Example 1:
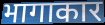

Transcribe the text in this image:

भागाकार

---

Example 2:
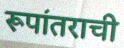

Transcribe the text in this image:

रूपांतराची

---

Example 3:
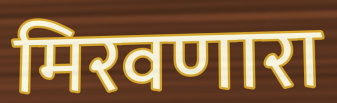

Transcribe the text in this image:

मिरवणारा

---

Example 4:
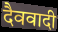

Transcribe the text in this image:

दैववादी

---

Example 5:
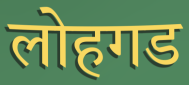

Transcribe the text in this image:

लोहगड